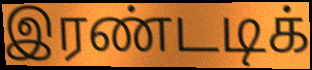
இரண்டடிக்